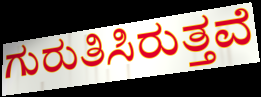
ಗುರುತಿಸಿರುತ್ತವೆ